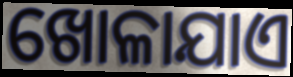
ଖୋଳାଯାଏ